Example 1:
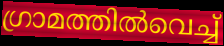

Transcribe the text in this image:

ഗ്രാമത്തിൽവെച്ച്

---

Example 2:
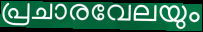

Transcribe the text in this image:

പ്രചാരവേലയും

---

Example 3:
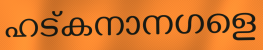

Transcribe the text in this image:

ഹട്കനാനഗളെ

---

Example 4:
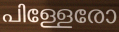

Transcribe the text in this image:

പിള്ളേരോ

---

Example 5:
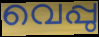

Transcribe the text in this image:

വെപ്പു